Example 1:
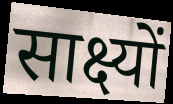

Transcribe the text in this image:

साक्ष्यों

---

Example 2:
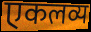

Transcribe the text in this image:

एकलव्य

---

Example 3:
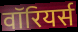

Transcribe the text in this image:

वॉरियर्स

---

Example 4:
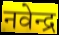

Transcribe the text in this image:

नवेन्द्र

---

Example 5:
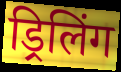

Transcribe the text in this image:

ड्रिलिंग